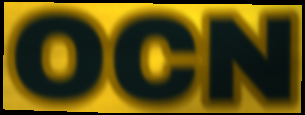
OCN